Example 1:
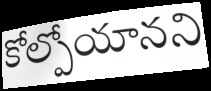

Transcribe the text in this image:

కోల్పోయానని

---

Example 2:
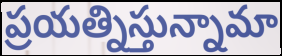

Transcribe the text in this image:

ప్రయత్నిస్తున్నామా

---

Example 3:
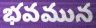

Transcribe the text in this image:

భవమున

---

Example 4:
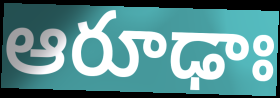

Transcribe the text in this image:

ఆరూఢాః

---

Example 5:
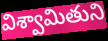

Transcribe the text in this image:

విశ్వామితుని